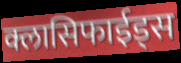
क्लासिफाईड्स